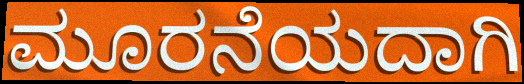
ಮೂರನೆಯದಾಗಿ